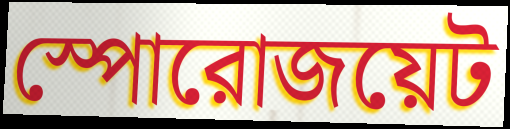
স্পোরোজয়েট